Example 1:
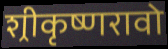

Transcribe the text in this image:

श्रीकृष्णरावो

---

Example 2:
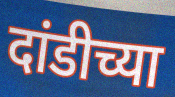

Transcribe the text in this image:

दांडीच्या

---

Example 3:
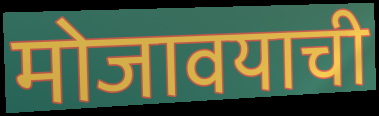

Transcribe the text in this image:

मोजावयाची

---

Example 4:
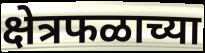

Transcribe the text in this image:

क्षेत्रफळाच्या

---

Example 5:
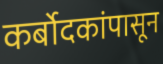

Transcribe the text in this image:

कर्बोदकांपासून